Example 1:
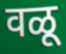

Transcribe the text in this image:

वळू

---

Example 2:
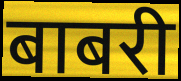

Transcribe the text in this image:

बाबरी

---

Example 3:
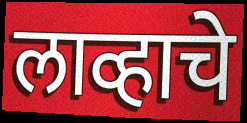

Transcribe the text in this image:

लाव्हाचे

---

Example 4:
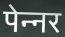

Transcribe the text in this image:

पेन्नर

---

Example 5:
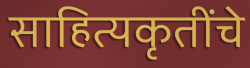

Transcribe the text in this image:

साहित्यकृतींचे